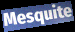
Mesquite